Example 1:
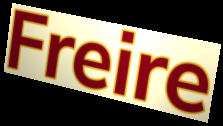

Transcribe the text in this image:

Freire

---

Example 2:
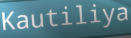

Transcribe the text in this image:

Kautiliya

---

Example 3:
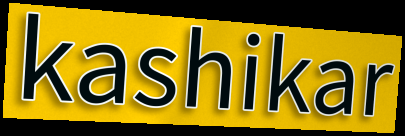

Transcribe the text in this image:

kashikar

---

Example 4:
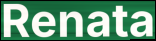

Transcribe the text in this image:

Renata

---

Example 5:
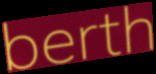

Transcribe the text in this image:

berth